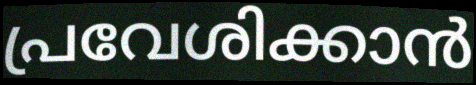
പ്രവേശിക്കാൻ